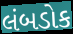
લંબડોક